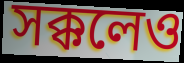
সক্কলেও